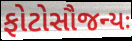
ફોટોસૌજન્યઃ